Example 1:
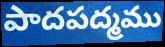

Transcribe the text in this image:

పాదపద్మము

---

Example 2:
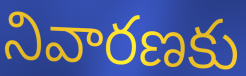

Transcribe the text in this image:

నివారణకు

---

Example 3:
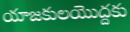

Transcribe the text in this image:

యాజకులయొద్దకు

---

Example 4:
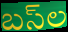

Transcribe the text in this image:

బస్‌ల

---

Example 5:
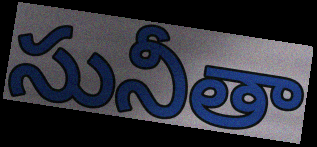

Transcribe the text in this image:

సునీతా